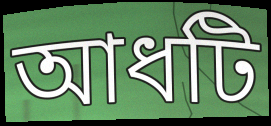
আধটি